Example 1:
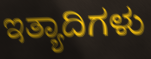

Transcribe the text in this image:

ಇತ್ಯಾದಿಗಳು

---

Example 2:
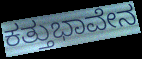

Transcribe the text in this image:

ಕತ್ತುಭಾವೇನ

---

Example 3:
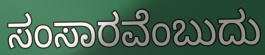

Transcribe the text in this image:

ಸಂಸಾರವೆಂಬುದು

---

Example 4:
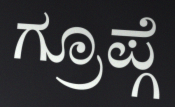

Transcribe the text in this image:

ಗ್ರೂಪ್ಗೆ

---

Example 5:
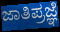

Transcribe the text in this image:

ಜಾತಿಪ್ರಜ್ಞೆ